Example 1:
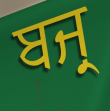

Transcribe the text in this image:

ਬਜ੍ਰ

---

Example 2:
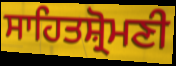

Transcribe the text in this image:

ਸਾਹਿਤਸ਼੍ਰੋਮਣੀ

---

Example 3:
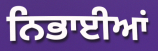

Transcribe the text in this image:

ਨਿਭਾਈਆਂ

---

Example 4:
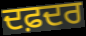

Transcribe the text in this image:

ਦਫ਼ਦਰ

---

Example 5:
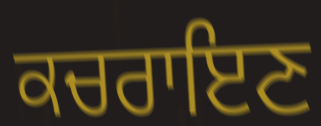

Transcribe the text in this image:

ਕਚਰਾਇਣ